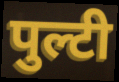
पुल्टी